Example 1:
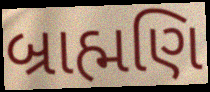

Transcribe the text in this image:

બ્રાહ્મણિ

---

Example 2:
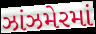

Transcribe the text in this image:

ઝાંઝમેરમાં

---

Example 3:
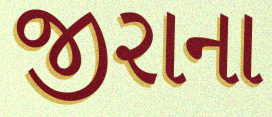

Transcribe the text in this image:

જીરાના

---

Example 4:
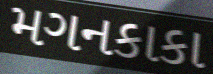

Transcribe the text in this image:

મગનકાકા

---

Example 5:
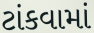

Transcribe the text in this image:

ટાંકવામાં